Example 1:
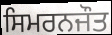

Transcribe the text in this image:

ਸਿਮਰਨਜੌਤ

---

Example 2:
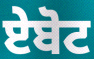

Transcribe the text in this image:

ਏਬੋਟ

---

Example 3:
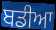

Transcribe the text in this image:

ਬਡੀਆ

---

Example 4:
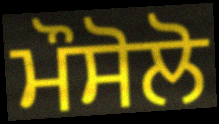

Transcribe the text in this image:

ਮੌਸੋਲੋ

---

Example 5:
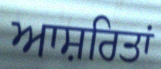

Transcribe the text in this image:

ਆਸ਼ਰਿਤਾਂ